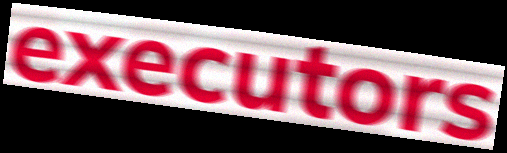
executors